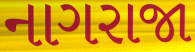
નાગરાજા